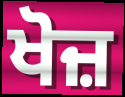
ਖੋਜ਼